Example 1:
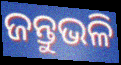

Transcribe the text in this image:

ଜନ୍ତୁଭଳି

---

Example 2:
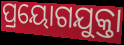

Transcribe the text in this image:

ପ୍ରୟୋଗଯୁକ୍ତା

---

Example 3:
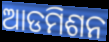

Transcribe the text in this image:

ଆଡମିଶନ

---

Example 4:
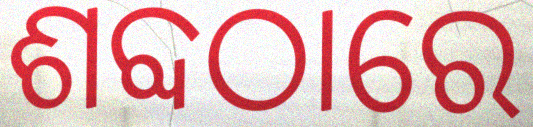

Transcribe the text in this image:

ଶବ୍ଦଠାରେ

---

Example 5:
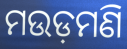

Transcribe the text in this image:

ମଉଡ଼ମଣି